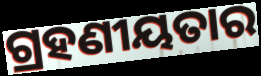
ଗ୍ରହଣୀୟତାର